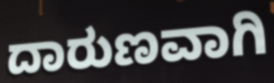
ದಾರುಣವಾಗಿ